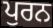
ਪੁਰਨ